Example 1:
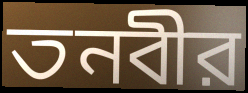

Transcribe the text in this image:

তনবীর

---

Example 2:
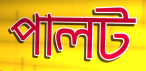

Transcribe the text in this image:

পালট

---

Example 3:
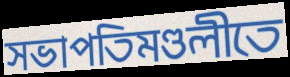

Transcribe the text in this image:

সভাপতিমণ্ডলীতে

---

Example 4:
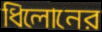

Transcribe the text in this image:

ধিলোনের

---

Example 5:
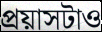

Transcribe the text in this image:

প্রয়াসটাও